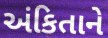
અંકિતાને